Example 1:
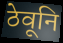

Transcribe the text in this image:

ठेवूनि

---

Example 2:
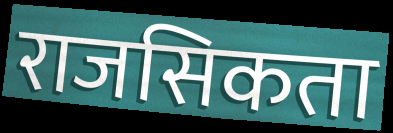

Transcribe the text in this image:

राजसिकता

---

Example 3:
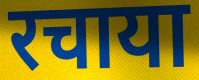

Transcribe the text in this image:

रचाया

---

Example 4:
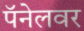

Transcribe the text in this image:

पॅनेलवर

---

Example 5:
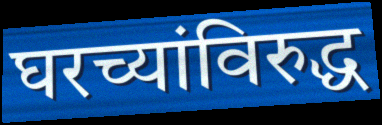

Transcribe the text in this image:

घरच्यांविरुद्ध